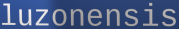
luzonensis